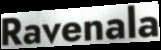
Ravenala